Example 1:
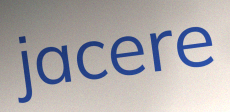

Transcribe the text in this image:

jacere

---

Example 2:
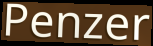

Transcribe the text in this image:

Penzer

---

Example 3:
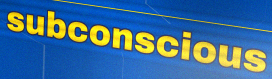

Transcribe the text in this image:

subconscious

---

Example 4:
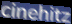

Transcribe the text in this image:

cinehitz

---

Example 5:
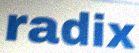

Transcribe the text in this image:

radix